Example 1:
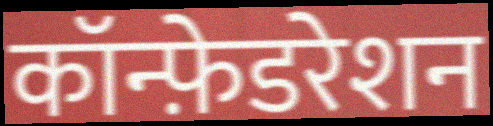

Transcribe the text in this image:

कॉन्फ़ेडरेशन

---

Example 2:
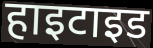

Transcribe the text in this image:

हाइटाइड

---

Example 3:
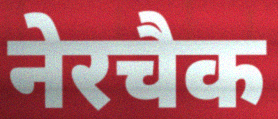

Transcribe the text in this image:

नेरचैक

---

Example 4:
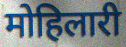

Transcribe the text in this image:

मोहिलारी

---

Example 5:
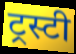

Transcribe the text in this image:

ट्रस्टी